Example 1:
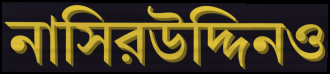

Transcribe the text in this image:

নাসিরউদ্দিনও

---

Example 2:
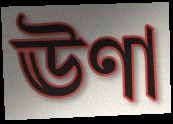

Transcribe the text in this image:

ঊণা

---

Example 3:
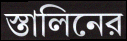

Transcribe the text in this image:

স্তালিনের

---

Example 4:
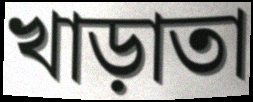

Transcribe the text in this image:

খাড়াতা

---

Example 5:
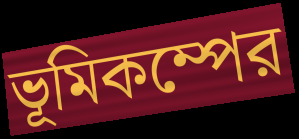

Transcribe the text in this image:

ভূমিকম্পের